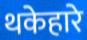
थकेहारे